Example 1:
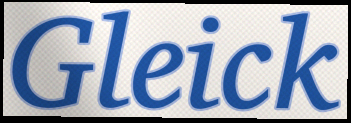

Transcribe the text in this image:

Gleick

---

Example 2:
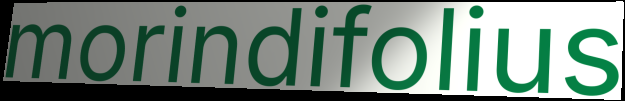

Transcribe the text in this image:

morindifolius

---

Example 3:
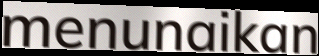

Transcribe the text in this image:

menunaikan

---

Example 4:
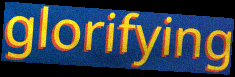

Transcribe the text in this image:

glorifying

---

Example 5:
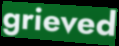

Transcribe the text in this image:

grieved